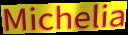
Michelia